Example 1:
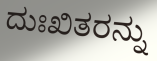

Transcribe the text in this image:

ದುಃಖಿತರನ್ನು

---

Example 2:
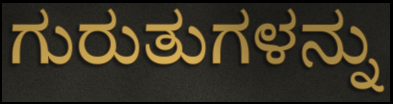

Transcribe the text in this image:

ಗುರುತುಗಳನ್ನು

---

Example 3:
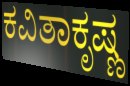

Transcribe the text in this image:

ಕವಿತಾಕೃಷ್ಣ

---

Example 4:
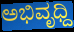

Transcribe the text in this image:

ಅಭಿವೃಧ್ದಿ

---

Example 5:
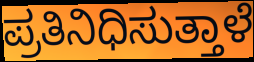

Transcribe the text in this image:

ಪ್ರತಿನಿಧಿಸುತ್ತಾಳೆ